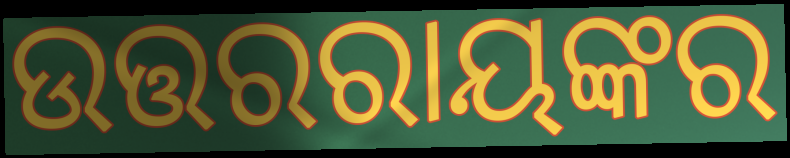
ଉତ୍ତରରାୟଙ୍କର